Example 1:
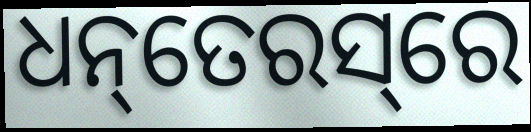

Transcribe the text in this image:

ଧନ୍‌ତେରସ୍‌ରେ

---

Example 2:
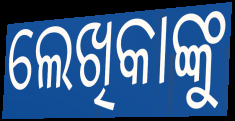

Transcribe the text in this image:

ଲେଖିକାଙ୍କୁ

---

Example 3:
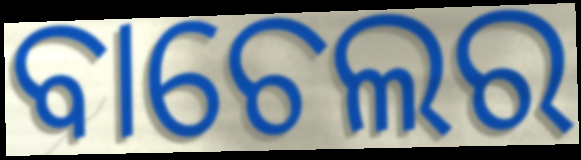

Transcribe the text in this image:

ବାଚେଲର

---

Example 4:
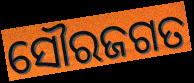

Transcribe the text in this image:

ସୌରଜଗତ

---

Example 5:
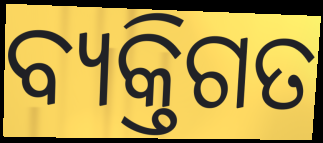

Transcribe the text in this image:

ବ୍ୟକ୍ତିଗତ